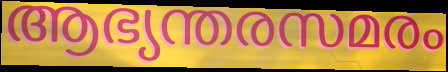
ആഭ്യന്തരസമരം